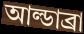
আল্ডাব্রা